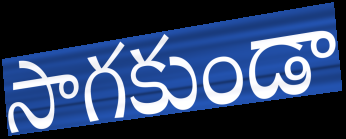
సాగకుండా